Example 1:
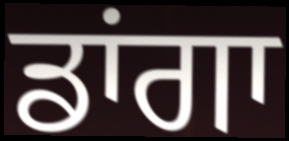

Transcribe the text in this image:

ਡਾਂਗਾ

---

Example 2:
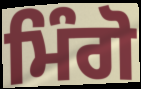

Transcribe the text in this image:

ਮਿੰਗੋ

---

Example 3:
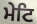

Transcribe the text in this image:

ਮੇਟਿ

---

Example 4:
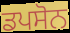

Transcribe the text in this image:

ਡਪਸੋਨ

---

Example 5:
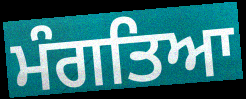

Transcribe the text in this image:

ਮੰਗਤਿਆ